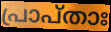
പ്രാപ്താഃ